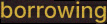
borrowing